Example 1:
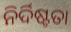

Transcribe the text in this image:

ନିର୍ଦିଷ୍ଟତା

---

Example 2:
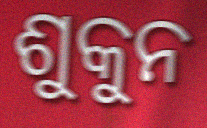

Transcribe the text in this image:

ଶୁକୁନ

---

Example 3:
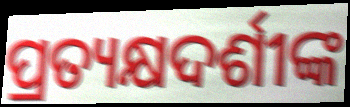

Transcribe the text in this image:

ପ୍ରତ୍ୟକ୍ଷଦର୍ଶୀଙ୍କ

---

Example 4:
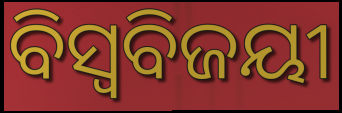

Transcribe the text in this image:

ବିସ୍ଵବିଜୟୀ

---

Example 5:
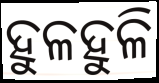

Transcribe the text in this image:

ହୁଳହୁଳି